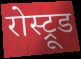
रोस्ट्रूड